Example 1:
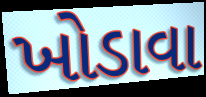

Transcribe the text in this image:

ખોડાવા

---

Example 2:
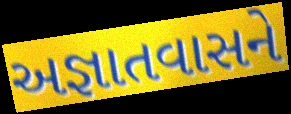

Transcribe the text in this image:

અજ્ઞાતવાસને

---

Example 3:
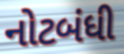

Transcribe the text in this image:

નોટબંધી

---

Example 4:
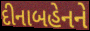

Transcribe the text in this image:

દીનાબહેનને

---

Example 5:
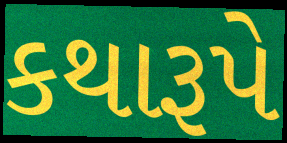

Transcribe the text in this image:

કથારૂપે